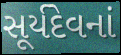
સૂર્યદેવનાં